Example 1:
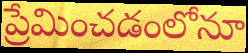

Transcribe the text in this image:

ప్రేమించడంలోనూ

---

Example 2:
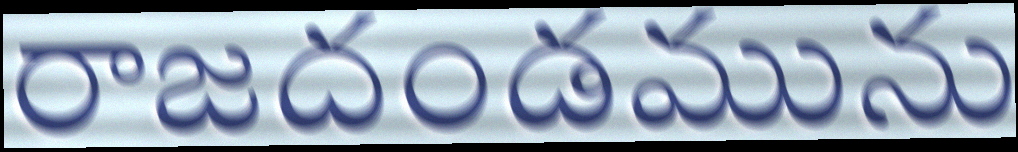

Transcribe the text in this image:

రాజదండమును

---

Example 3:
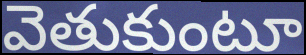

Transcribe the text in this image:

వెతుకుంటూ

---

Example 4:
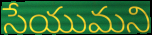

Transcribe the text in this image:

సేయుమని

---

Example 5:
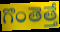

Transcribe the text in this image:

గొంతెత్తే